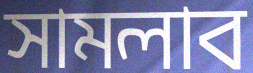
সামলাব